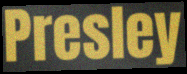
Presley